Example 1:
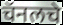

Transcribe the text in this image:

चॅनलचे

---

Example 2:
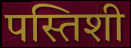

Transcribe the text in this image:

पस्तिशी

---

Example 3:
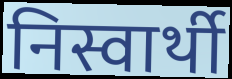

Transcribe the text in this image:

निस्वार्थी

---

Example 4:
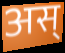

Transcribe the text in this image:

अस्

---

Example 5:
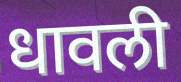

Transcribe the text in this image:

धावली